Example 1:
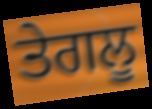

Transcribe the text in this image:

ਤੇਗਲੂ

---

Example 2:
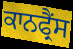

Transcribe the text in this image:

ਕਾਨਫ੍ਰੈਂਸ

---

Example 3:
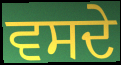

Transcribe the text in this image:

ਵਸਦੇ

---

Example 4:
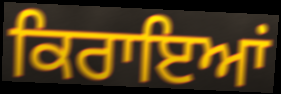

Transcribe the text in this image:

ਕਿਰਾਇਆਂ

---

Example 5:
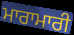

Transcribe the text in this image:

ਮਾਰਾਮਾਰੀ